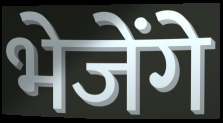
भेजेंगे